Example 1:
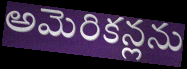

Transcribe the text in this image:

అమెరికన్లను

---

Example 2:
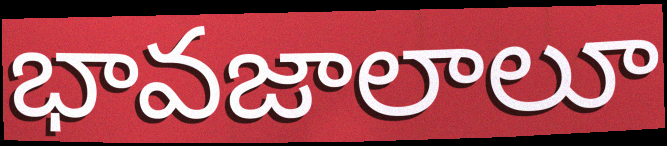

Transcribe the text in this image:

భావజాలాలూ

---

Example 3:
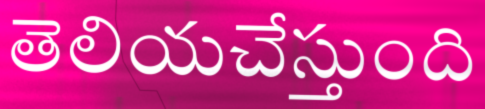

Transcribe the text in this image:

తెలియచేస్తుంది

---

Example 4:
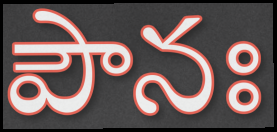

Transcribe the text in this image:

పౌనః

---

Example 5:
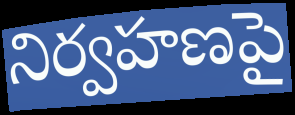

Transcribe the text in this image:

నిర్వహణపై